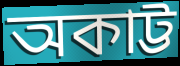
অকাট্ট